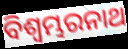
ବିଶ୍ୱମ୍ଭରନାଥ